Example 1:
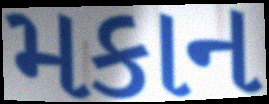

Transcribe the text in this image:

મકાન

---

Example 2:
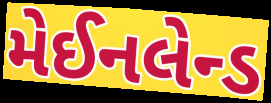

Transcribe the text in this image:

મેઈનલેન્ડ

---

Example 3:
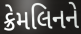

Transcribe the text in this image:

ક્રેમલિનને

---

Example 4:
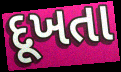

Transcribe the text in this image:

દૂખતા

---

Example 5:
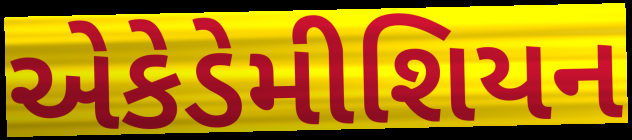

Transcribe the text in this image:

એકેડેમીશિયન